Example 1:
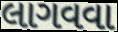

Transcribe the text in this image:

લાગવવા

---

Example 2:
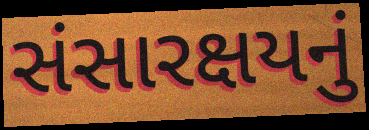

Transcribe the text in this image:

સંસારક્ષયનું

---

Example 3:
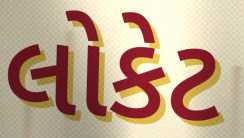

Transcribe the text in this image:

લોકેટ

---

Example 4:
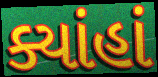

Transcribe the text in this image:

ક્યાંહાં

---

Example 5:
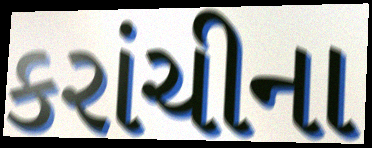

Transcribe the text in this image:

કરાંચીના